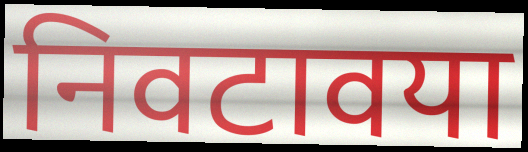
निवटावया